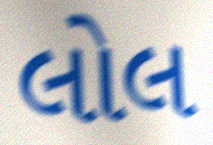
લોલ